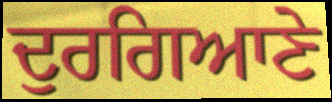
ਦੁਰਗਿਆਣੇ